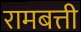
रामबत्ती